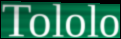
Tololo